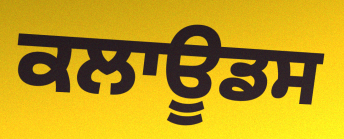
ਕਲਾਊਡਸ